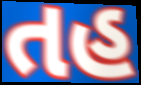
તહ